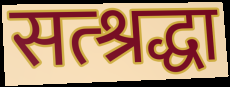
सत्श्रद्धा